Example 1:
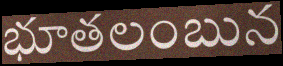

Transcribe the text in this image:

భూతలంబున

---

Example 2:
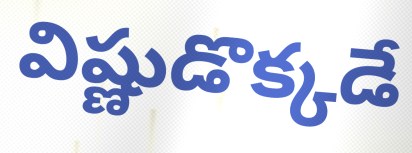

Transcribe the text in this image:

విష్ణుడొక్కడే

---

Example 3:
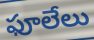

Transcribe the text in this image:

ఫూలేలు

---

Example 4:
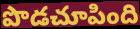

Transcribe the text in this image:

పొడచూపింది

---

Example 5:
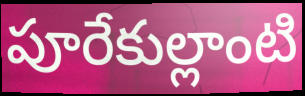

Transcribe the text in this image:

పూరేకుల్లాంటి